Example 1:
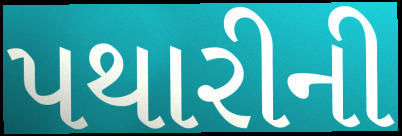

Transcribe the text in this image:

પથારીની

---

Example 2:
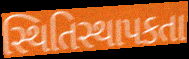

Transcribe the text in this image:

સ્થિતિસ્થાપકતા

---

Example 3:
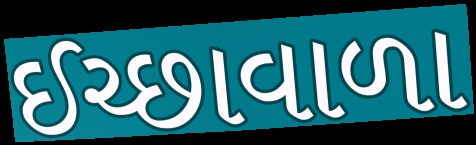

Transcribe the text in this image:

ઈચ્છાવાળા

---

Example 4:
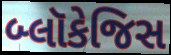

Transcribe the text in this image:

બ્લૉકેજિસ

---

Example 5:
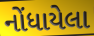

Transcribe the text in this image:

નોંધાયેલા